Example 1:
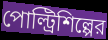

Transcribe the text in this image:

পোল্ট্রিশিল্পের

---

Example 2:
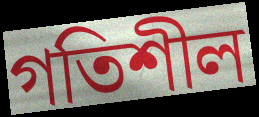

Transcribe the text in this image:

গতিশীল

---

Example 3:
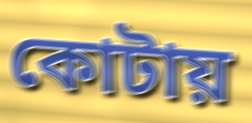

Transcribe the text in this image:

কোটায়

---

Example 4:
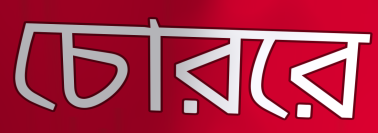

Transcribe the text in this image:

চোররে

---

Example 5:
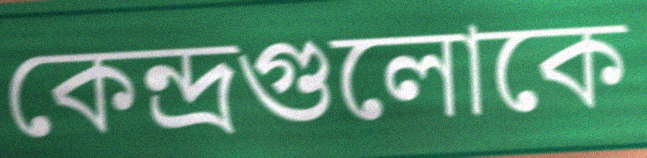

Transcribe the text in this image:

কেন্দ্রগুলোকে